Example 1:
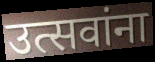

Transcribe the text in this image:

उत्सवांना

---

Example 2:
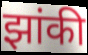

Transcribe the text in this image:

झांकी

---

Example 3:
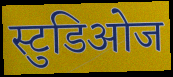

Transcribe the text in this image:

स्टुडिओज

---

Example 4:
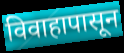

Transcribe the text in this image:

विवाहापासून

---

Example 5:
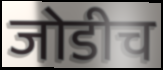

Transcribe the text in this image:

जोडीच